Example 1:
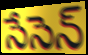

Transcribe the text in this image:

సేసెన్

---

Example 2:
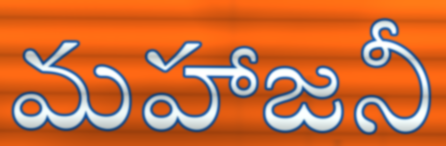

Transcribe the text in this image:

మహాజనీ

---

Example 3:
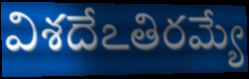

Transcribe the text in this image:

విశదేఽతిరమ్యే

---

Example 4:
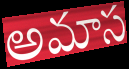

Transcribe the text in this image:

అమాస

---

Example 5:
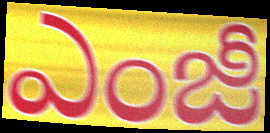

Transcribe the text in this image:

ఎంజీ